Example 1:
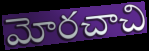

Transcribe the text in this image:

మోరచాచి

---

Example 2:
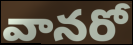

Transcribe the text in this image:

వానరో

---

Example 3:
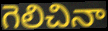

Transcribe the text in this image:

గెలిచినా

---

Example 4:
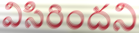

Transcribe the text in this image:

విసిరిందని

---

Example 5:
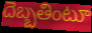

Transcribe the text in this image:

దెబ్బతింటూ